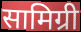
सामिग्री